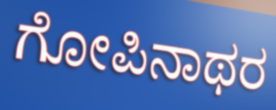
ಗೋಪಿನಾಥರ